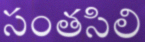
సంతసిలి